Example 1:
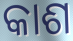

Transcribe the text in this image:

କାଶ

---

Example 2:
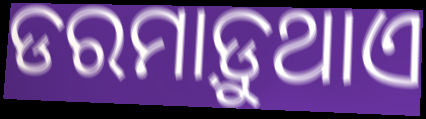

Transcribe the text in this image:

ଡରମାଡ଼ୁଥାଏ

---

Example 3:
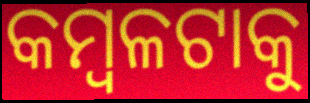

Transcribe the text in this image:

କମ୍ବଳଟାକୁ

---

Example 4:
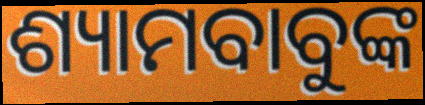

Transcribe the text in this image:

ଶ୍ୟାମବାବୁଙ୍କ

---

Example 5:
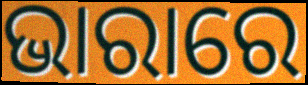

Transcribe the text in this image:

ଭାରାରେ